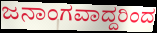
ಜನಾಂಗವಾದ್ದರಿಂದ